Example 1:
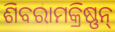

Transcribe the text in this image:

ଶିବରାମକ୍ରିଷ୍ଣନ୍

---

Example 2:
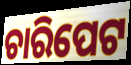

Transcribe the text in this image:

ଚାରିପେଟ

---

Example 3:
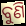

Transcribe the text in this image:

ବୁଣି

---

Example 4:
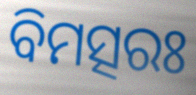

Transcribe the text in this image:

ବିମତ୍ସରଃ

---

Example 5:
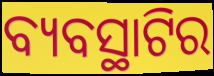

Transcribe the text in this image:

ବ୍ୟବସ୍ଥାଟିର